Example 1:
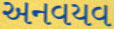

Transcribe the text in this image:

અનવયવ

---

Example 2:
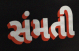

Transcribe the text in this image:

સંમતી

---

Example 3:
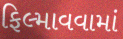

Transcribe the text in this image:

ફિલ્માવવામાં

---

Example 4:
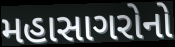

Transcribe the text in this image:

મહાસાગરોનો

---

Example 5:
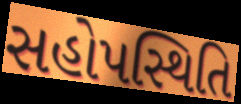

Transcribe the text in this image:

સહોપસ્થિતિ